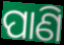
ପାଣି